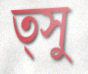
ত্সু